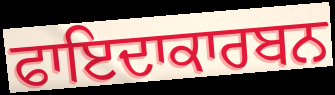
ਫਾਇਦਾਕਾਰਬਨ